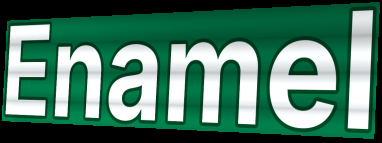
Enamel